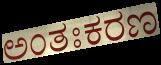
ಅಂತಃಕರಣ